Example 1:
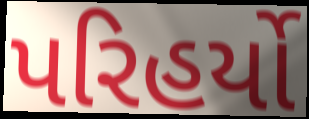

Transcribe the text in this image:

પરિહર્યો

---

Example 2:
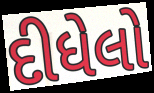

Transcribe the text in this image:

દીધેલો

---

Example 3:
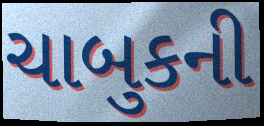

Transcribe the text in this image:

ચાબુકની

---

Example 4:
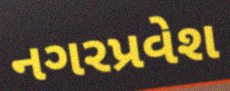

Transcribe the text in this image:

નગરપ્રવેશ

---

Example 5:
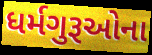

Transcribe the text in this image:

ધર્મગુરૂઓના